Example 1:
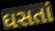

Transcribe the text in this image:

ઘસતાં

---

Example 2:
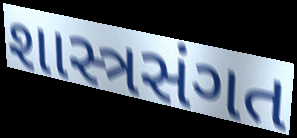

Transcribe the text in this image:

શાસ્ત્રસંગત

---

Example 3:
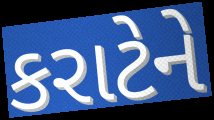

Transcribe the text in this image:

કરાટેને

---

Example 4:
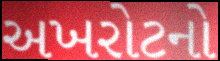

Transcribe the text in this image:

અખરોટનો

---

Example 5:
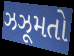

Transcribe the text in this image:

ઝઝૂમતો